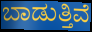
ಬಾಡುತ್ತಿವೆ